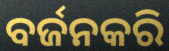
ବର୍ଜନକରି